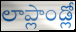
లాప్లాండ్లో